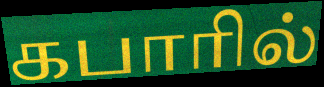
கபாரில்